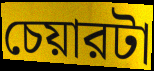
চেয়ারটা